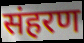
संहरण